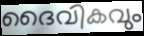
ദൈവികവും